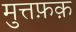
मुत्तफ़क़